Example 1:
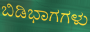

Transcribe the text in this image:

ಬಿಡಿಭಾಗಗಳು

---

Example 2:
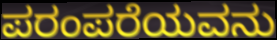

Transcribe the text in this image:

ಪರಂಪರೆಯವನು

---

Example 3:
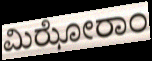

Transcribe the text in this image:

ಮಿಝೋರಾಂ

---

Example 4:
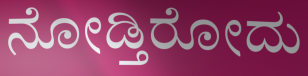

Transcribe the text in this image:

ನೋಡ್ತಿರೋದು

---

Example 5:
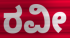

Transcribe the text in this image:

ರವೀ